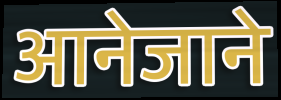
आनेजाने